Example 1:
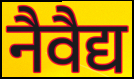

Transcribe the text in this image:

नैवैद्य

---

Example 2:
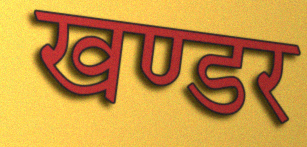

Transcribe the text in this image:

खण्डर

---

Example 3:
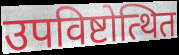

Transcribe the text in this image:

उपविष्टोत्थित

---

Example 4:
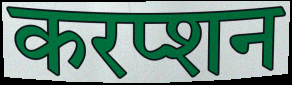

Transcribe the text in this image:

करप्शन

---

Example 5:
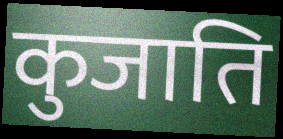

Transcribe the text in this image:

कुजाति